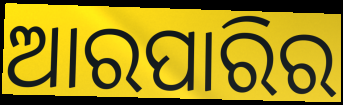
ଆରପାରିର